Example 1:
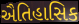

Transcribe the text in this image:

ઐતિહાસિક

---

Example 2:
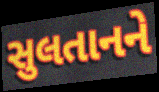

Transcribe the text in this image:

સુલતાનને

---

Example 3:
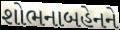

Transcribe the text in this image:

શોભનાબહેનને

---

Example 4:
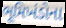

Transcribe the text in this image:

ભૂમિખંડોના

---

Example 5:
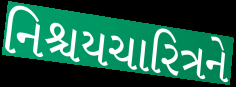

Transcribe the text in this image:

નિશ્ચયચારિત્રને